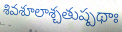
శివశూలాశ్చతుష్పథాః